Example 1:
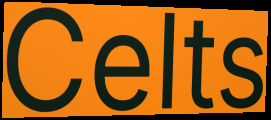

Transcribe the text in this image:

Celts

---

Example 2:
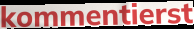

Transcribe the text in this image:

kommentierst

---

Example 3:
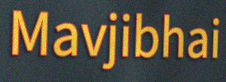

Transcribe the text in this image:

Mavjibhai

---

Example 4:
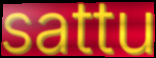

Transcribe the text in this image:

sattu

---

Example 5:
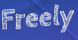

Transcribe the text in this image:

Freely